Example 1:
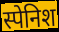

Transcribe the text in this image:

स्पेनिश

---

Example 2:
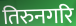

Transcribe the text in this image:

तिरुनगरि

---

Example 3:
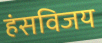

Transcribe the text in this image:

हंसविजय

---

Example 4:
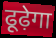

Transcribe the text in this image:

ढूढ़ेगा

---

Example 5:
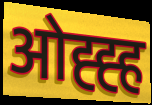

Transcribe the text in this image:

ओह्ह्ह